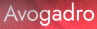
Avogadro